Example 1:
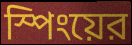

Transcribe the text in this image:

স্পিংয়ের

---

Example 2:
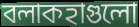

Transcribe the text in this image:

বলাকহাগুলো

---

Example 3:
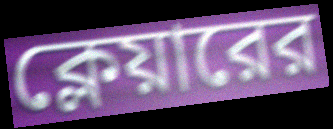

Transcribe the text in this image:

ক্লেয়ারের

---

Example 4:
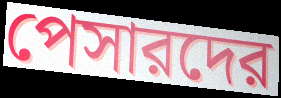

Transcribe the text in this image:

পেসারদের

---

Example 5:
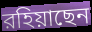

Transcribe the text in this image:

রহিয়াছেন